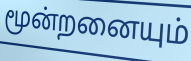
மூன்றனையும்